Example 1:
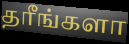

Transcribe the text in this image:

தரீங்களா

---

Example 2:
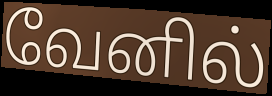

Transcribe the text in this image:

வேனில்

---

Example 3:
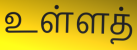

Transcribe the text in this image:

உள்ளத்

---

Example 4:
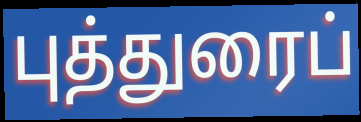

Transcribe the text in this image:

புத்துரைப்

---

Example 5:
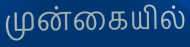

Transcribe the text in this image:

முன்கையில்